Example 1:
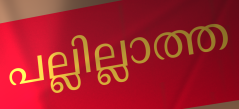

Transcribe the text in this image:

പല്ലില്ലാത്ത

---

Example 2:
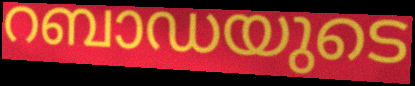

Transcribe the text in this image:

റബാഡയുടെ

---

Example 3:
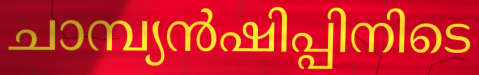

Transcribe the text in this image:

ചാമ്പ്യൻഷിപ്പിനിടെ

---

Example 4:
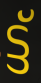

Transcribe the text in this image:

ട്ട്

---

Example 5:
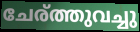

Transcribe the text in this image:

ചേര്ത്തുവച്ചു